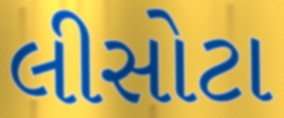
લીસોટા